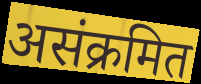
असंक्रमित